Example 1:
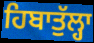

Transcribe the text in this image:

ਹਿਬਾਤੁੱਲ੍ਹਾ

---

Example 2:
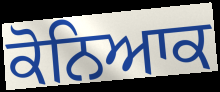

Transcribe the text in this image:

ਕੋਨਿਆਕ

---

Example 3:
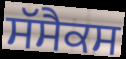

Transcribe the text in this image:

ਸੱਸੈਕਸ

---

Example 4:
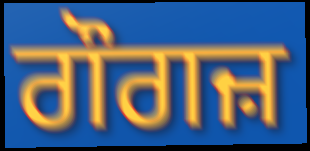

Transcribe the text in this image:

ਗੌਗਜ਼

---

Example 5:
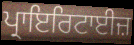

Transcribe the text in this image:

ਪ੍ਰਾਇਰਿਟਾਈਜ਼